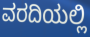
ವರದಿಯಲ್ಲಿ